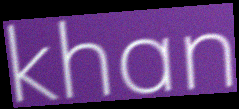
khan